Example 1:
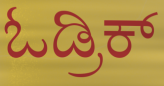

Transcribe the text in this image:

ಓಡ್ರಿಕ್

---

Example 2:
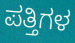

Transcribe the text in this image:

ಪತ್ತಿಗಳ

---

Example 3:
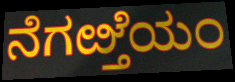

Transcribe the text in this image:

ನೆಗೞ್ತೆಯಂ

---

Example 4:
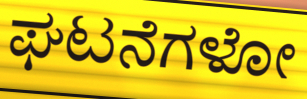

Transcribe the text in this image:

ಘಟನೆಗಳೋ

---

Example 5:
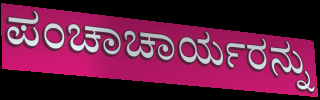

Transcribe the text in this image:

ಪಂಚಾಚಾರ್ಯರನ್ನು